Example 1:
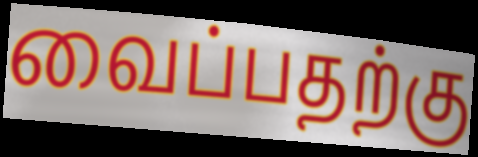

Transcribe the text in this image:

வைப்பதற்கு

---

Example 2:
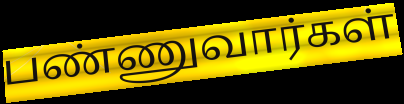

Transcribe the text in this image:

பண்ணுவார்கள்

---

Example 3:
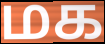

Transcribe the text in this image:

மக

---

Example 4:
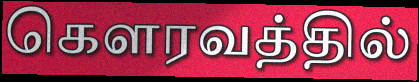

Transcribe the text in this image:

கௌரவத்தில்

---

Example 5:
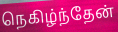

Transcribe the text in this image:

நெகிழ்ந்தேன்